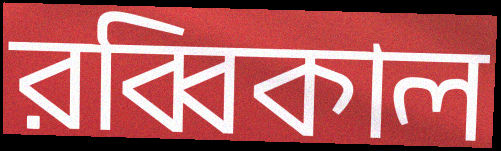
রব্বিকাল